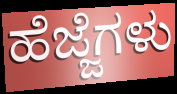
ಹೆಜ್ಜೆಗಳು